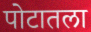
पोटातला